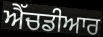
ਐੱਚਡੀਆਰ